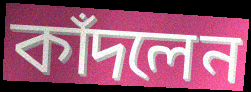
কাঁদলেন